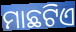
ମାଛଟିଏ